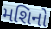
મશિનો